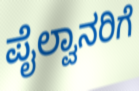
ಪೈಲ್ವಾನರಿಗೆ